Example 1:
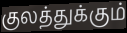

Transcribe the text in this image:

குலத்துக்கும்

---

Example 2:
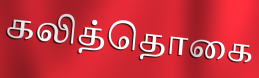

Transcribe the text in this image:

கலித்தொகை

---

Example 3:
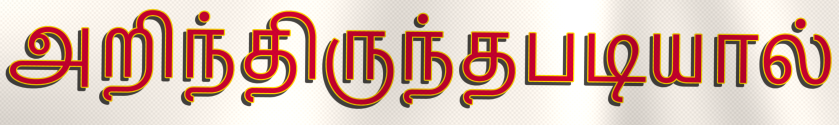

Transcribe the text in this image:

அறிந்திருந்தபடியால்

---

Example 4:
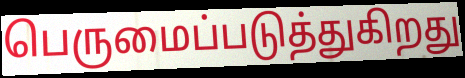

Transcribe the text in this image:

பெருமைப்படுத்துகிறது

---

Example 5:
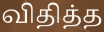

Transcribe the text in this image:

விதித்த